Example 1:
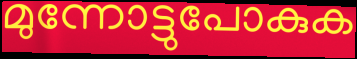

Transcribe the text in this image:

മുന്നോട്ടുപോകുക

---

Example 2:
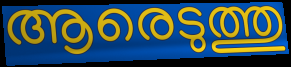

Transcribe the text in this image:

ആരെടുത്തു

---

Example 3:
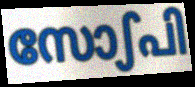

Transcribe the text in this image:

സോഽപി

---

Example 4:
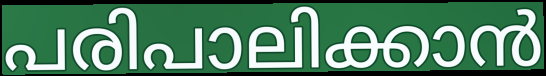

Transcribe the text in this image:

പരിപാലിക്കാൻ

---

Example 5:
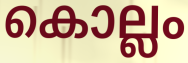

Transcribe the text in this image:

കൊല്ലം